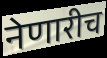
नेणारीच